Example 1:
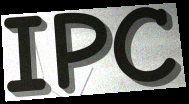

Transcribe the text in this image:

IPC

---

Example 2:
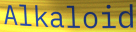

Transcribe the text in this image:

Alkaloid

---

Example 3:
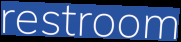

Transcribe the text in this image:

restroom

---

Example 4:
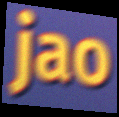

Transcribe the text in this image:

jao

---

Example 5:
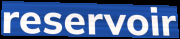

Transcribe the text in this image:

reservoir